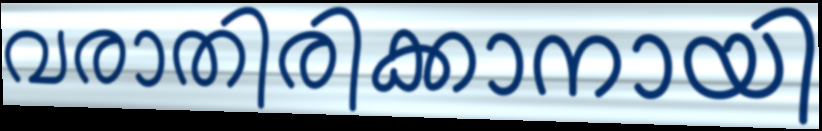
വരാതിരിക്കാനായി